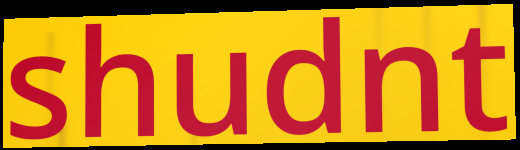
shudnt